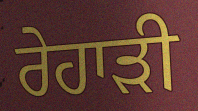
ਰੇਹਾੜੀ